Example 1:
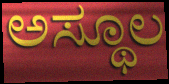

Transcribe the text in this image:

ಅಸ್ಥೂಲ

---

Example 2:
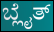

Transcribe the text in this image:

ಬ್ಲೈತ್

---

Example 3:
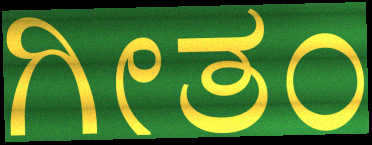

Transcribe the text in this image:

ಗೀತಂ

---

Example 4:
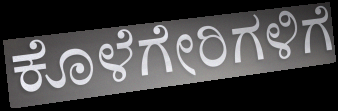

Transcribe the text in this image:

ಕೊಳೆಗೇರಿಗಳಿಗೆ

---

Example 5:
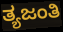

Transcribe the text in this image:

ತ್ಯಜಂತಿ